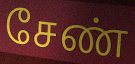
சேண்